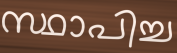
സ്ഥാപിച്ച